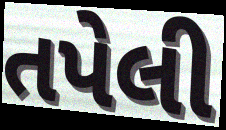
તપેલી